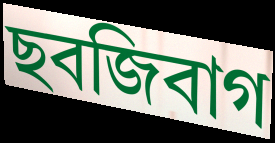
ছবজিবাগ